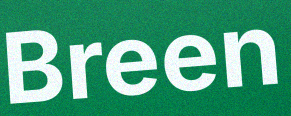
Breen